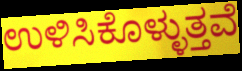
ಉಳಿಸಿಕೊಳ್ಳುತ್ತವೆ